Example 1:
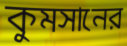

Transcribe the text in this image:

কুমসানের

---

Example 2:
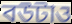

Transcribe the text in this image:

বউটাও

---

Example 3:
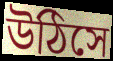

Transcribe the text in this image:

উঠিসে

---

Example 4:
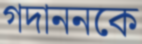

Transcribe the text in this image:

গদাননকে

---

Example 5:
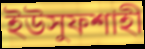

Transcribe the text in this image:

ইউসুফশাহী